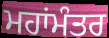
ਮਹਾਂਮੰਤਰ